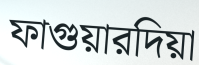
ফাগুয়ারদিয়া